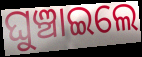
ଘୁଞ୍ଚାଇଲେ